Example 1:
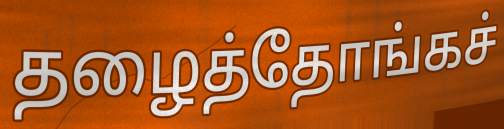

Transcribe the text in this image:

தழைத்தோங்கச்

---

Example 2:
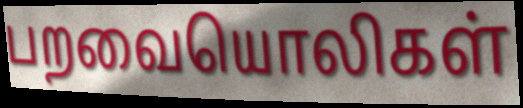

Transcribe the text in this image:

பறவையொலிகள்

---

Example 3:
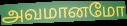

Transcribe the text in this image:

அவமானமோ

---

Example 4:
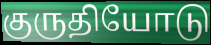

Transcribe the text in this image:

குருதியோடு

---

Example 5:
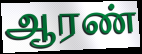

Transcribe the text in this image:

ஆரண்